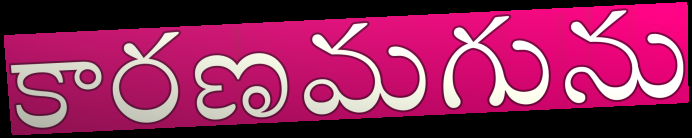
కారణమగును